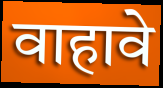
वाहावे